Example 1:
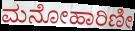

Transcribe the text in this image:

ಮನೋಹಾರಿಣೀ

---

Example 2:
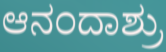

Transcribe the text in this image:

ಆನಂದಾಶ್ರು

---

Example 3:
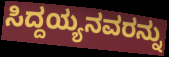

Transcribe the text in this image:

ಸಿದ್ದಯ್ಯನವರನ್ನು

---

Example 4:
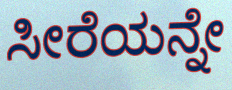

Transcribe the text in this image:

ಸೀರೆಯನ್ನೇ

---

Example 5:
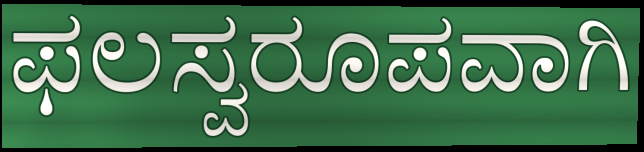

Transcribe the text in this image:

ಫಲಸ್ವರೂಪವಾಗಿ